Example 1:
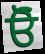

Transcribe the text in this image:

ਓੋ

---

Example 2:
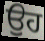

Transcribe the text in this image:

ਉਹ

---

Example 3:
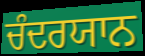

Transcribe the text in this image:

ਚੰਦਰਯਾਨ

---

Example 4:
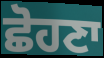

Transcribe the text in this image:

ਛੋਹਣਾ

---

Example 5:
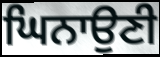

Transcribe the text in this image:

ਘਿਨਾਉਣੀ